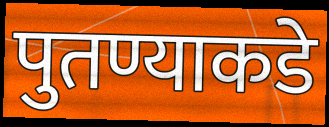
पुतण्याकडे